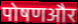
पोषणऔर